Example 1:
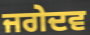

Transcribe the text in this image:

ਜਗੇਦਵ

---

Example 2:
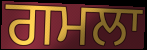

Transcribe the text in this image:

ਗਮਲਾ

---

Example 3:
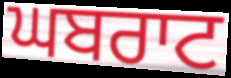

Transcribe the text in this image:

ਘਬਰਾਟ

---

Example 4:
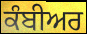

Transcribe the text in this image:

ਕੰਬੀਅਰ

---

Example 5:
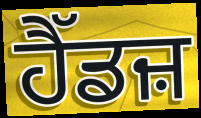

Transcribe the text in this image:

ਹੈੱਡਜ਼